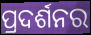
ପ୍ରଦର୍ଶନର